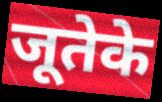
जूतेके